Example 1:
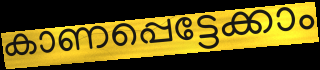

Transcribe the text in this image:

കാണപ്പെട്ടേക്കാം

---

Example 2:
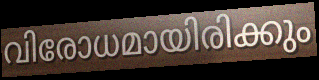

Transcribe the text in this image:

വിരോധമായിരിക്കും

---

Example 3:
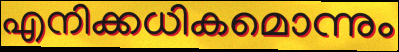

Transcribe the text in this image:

എനിക്കധികമൊന്നും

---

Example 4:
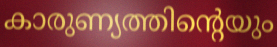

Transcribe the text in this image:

കാരുണ്യത്തിന്റെയും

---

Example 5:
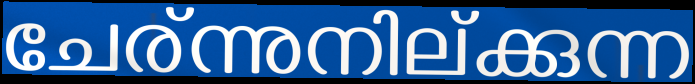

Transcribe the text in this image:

ചേര്ന്നുനില്ക്കുന്ന